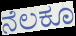
ನೆಲಕೂ